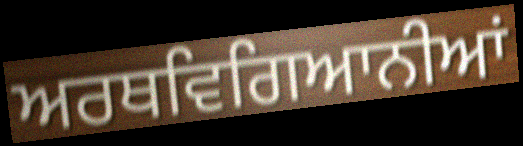
ਅਰਥਵਿਗਿਆਨੀਆਂ